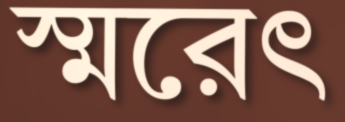
স্মরেৎ